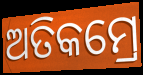
ଅତିକମ୍ରେ